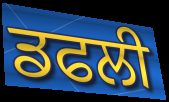
ਡਫਲੀ